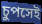
চুপসেই